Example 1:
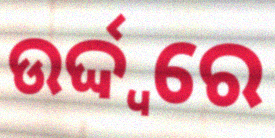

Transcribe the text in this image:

ଉର୍ଦ୍ଦ୍ୱରେ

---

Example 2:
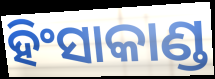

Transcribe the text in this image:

ହିଂସାକାଣ୍ଡ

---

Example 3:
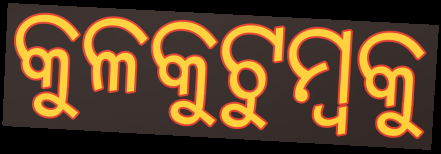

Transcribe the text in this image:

କୁଳକୁଟୁମ୍ବକୁ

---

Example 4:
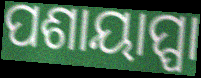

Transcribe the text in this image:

ପଶାୟାପ୍ପା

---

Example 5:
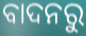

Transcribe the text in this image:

ବାଦନରୁ